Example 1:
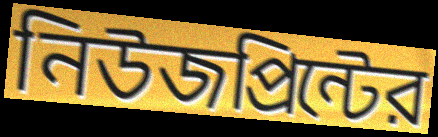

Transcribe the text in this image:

নিউজপ্রিন্টের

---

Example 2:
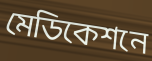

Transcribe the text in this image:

মেডিকেশনে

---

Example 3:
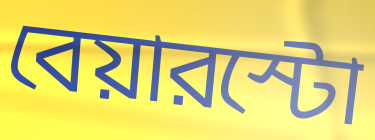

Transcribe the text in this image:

বেয়ারস্টো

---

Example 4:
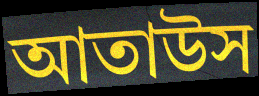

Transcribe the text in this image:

আতাউস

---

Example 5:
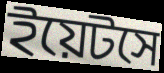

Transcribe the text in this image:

ইয়েটসে